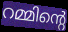
റമ്മിന്റെ